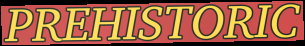
PREHISTORIC